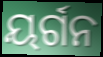
ୟର୍ଗନ